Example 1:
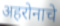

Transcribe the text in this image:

अहरोनाचे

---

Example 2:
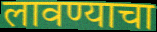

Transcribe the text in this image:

लावण्याचा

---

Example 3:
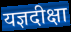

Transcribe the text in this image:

यज्ञदीक्षा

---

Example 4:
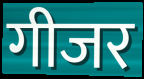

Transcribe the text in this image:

गीजर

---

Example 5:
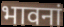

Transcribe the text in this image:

भावनां